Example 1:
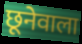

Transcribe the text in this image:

छूनेवाला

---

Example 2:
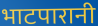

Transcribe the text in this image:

भाटपारानी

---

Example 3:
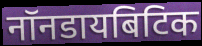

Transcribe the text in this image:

नॉनडायबिटिक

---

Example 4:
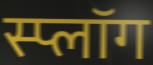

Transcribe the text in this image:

स्प्लॉग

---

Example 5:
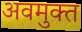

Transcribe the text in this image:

अवमुक्त